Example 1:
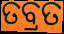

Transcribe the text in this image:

ତବ୍ରତ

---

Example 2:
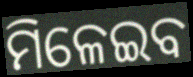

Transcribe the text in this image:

ମିଳେଇବ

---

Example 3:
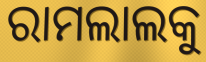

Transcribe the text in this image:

ରାମଲାଲକୁ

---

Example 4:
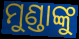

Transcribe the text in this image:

ମୁଣ୍ଡାଙ୍କୁ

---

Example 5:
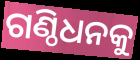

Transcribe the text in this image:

ଗଣ୍ଠିଧନକୁ